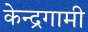
केन्द्रगामी